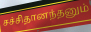
சச்சிதானந்தனும்